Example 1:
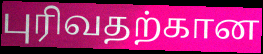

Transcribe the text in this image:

புரிவதற்கான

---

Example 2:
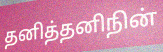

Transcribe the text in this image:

தனித்தனிநின்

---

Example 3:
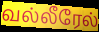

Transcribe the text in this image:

வல்லீரேல்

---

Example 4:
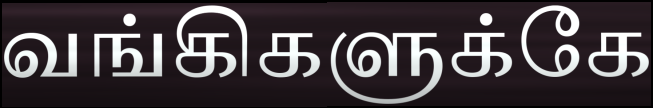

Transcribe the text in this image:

வங்கிகளுக்கே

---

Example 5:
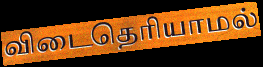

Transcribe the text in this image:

விடைதெரியாமல்